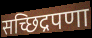
सच्छिद्रपणा